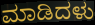
ಮಾಡಿದಳು